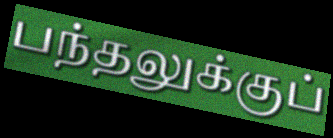
பந்தலுக்குப்